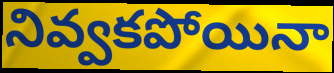
నివ్వకపోయినా